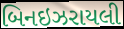
બિનઇઝરાયલી